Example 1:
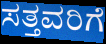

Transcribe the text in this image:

ಸತ್ತವರಿಗೆ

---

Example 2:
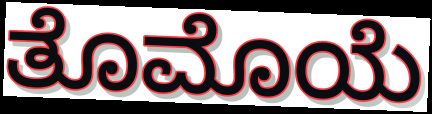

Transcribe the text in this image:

ತೊಮೊಯೆ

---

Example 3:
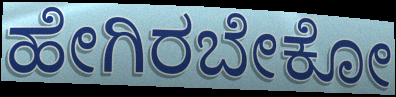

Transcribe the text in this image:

ಹೇಗಿರಬೇಕೋ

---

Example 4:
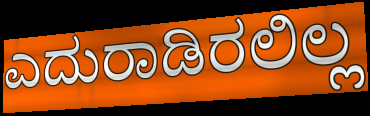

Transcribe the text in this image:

ಎದುರಾಡಿರಲಿಲ್ಲ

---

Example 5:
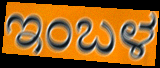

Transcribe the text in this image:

ಇಂಬಳ